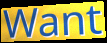
Want